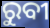
ରୁବୀ